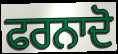
ਫਰਨਾਦੋ